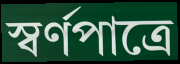
স্বর্ণপাত্রে